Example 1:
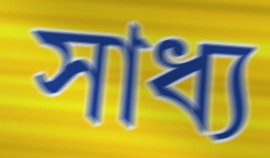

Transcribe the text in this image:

সাধ্য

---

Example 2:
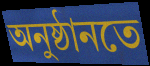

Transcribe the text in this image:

অনুষ্ঠানতে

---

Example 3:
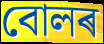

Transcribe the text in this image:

বোলৰ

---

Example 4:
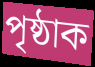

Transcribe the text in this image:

পৃষ্ঠাক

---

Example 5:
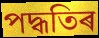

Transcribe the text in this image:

পদ্ধতিৰ